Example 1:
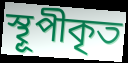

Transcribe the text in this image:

স্থূপীকৃত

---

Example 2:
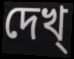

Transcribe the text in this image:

দেখ্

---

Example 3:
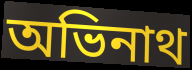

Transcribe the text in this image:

অভিনাথ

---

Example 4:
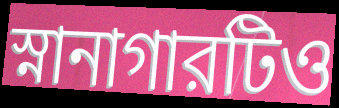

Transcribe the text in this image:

স্নানাগারটিও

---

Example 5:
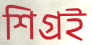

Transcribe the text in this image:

শিগ্রই